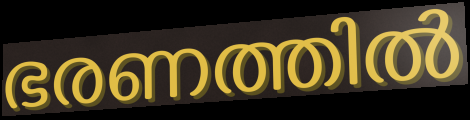
ഭരണത്തിൽ